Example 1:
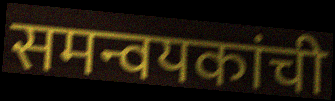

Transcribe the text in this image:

समन्वयकांची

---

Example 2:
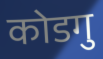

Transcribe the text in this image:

कोडगु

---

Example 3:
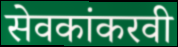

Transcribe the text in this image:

सेवकांकरवी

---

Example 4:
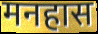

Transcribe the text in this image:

मनहास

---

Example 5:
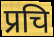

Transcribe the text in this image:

प्रचि